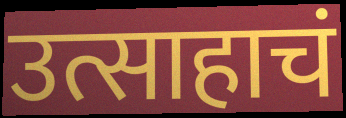
उत्साहाचं